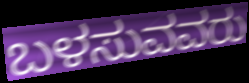
ಬಳಸುವವರು